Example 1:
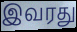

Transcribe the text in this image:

இவரது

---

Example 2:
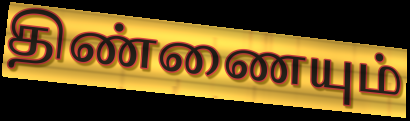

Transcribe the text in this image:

திண்ணையும்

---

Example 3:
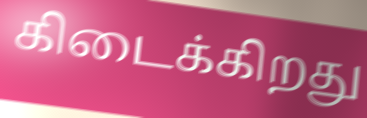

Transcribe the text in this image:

கிடைக்கிறது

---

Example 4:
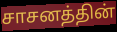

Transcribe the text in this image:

சாசனத்தின்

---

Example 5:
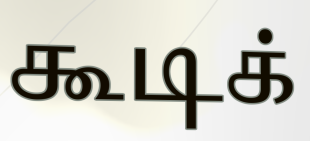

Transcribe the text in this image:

கூடிக்